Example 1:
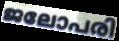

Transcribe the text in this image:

ജലോപരി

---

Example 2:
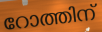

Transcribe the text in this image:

റോത്തിന്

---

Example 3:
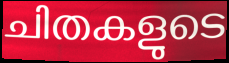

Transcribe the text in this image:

ചിതകളുടെ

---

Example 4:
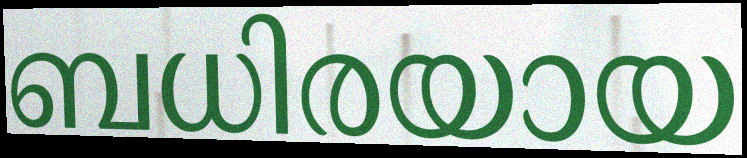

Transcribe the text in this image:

ബധിരയായ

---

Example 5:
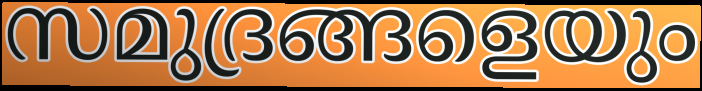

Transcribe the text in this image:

സമുദ്രങ്ങളെയും